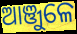
ଆଞ୍ଜୁଳେ